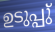
ഉടുപ്പു്